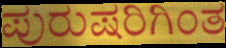
ಪುರುಷರಿಗಿಂತ